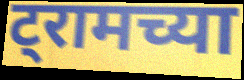
ट्रामच्या